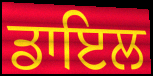
ਡਾਇਲ